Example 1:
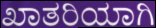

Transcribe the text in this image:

ಖಾತರಿಯಾಗಿ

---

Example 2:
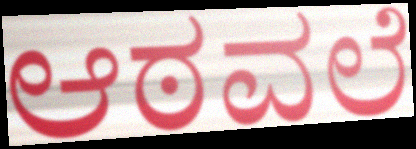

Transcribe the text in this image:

ಆಠವಲೆ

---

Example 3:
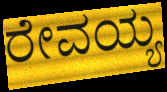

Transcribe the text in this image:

ರೇವಯ್ಯ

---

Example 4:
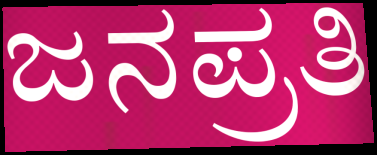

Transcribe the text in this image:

ಜನಪ್ರತಿ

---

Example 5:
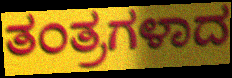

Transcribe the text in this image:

ತಂತ್ರಗಳಾದ